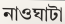
নাওঘাটা